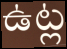
ఉట్ల